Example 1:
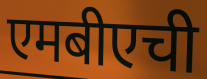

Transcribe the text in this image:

एमबीएची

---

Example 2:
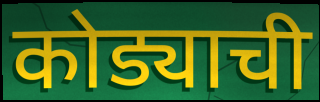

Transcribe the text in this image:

कोड्याची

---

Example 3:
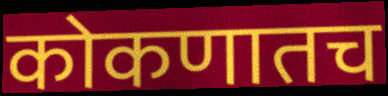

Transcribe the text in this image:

कोकणातच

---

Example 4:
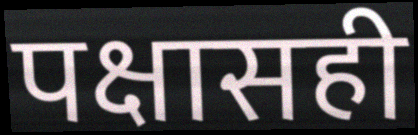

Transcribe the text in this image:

पक्षासही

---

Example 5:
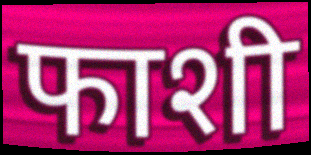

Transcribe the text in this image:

फाशी